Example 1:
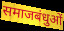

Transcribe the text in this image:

समाजबंधुओं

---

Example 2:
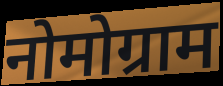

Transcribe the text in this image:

नोमोग्राम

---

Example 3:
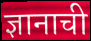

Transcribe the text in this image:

ज्ञानाची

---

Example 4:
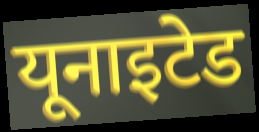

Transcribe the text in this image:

यूनाइटेड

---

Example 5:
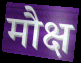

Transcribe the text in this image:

मौक्ष